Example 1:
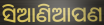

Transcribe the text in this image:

ସିଆଣିଆପଣ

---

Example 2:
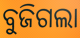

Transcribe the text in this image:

ବୁଜିଗଲା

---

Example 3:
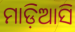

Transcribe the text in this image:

ମାଡ଼ିଆସି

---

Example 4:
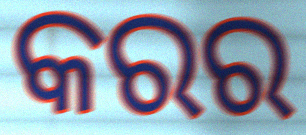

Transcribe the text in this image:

କରର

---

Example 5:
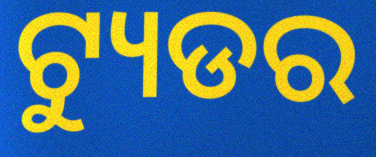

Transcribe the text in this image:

ଟ୍ୟୁଡର